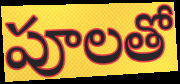
పూలతో